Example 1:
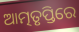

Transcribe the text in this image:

ଆତ୍ମତୃପ୍ତିରେ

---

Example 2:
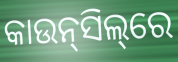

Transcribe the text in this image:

କାଉନ୍‌ସିଲ୍‌ରେ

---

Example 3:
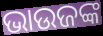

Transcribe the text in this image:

ଭାଉଜଙ୍କ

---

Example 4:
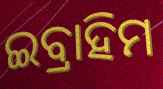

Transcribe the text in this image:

ଇବ୍ରାହିମ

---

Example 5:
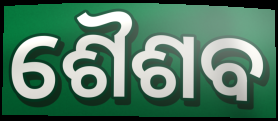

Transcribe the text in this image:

ଶୈଶବ